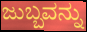
ಜುಬ್ಬವನ್ನು